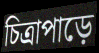
চিত্রাপাড়ে